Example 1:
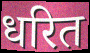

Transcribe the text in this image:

धरित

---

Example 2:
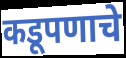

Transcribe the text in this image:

कडूपणाचे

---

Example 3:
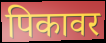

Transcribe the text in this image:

पिकावर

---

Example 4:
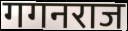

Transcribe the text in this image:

गगनराज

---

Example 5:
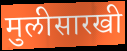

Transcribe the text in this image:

मुलीसारखी